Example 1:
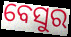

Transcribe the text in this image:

ବେସୁର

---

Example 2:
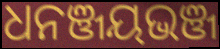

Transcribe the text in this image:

ଧନଞ୍ଜୟଭଞ୍ଜ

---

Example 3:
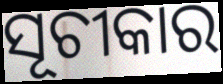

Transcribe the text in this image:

ସୂଚୀକାର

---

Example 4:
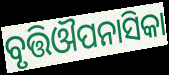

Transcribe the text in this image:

ବୃତ୍ତିଔପନାସିକା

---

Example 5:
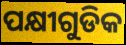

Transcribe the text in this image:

ପକ୍ଷୀଗୁଡିକ